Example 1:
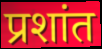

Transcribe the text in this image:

प्रशांत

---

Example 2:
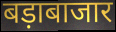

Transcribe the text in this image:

बड़ाबाजार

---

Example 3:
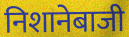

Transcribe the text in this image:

निशानेबाजी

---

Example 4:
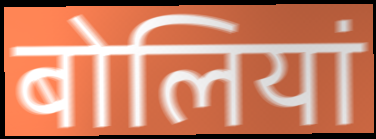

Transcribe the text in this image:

बोलियां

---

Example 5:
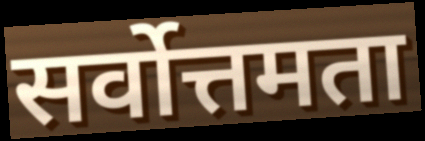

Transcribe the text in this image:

सर्वोत्तमता